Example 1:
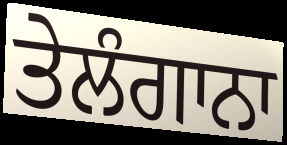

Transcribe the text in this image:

ਤੇਲੰਗਾਨਾ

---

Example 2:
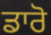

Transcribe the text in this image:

ਡਾਰੋ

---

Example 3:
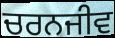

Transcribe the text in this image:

ਚਰਨਜੀਵ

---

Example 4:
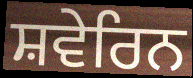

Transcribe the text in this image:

ਸ਼ਵੇਰਿਨ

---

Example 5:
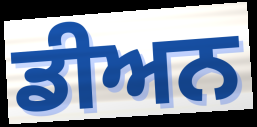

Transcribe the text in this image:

ਡੀਅਨ